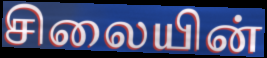
சிலையின்